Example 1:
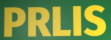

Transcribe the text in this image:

PRLIS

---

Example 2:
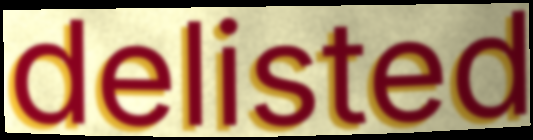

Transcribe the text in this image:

delisted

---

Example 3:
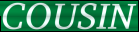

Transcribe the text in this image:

COUSIN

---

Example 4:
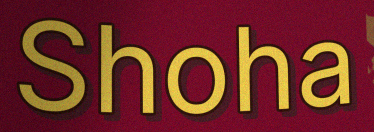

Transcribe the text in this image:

Shoha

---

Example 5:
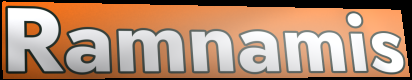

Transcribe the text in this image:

Ramnamis